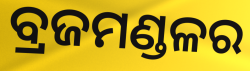
ବ୍ରଜମଣ୍ଡଳର